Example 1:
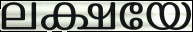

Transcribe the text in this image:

ലക്ഷയേ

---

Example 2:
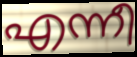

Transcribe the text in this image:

എന്നീ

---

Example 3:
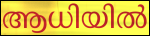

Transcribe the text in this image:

ആധിയിൽ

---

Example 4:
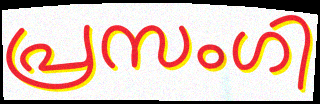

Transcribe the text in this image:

പ്രസംഗി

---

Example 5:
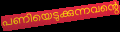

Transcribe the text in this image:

പണിയെടുക്കുന്നവന്റെ